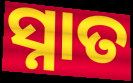
ସ୍ନାତ